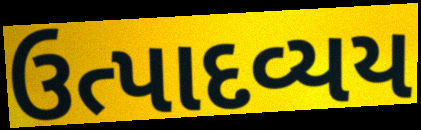
ઉત્પાદવ્યય